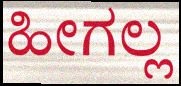
ಹೀಗಲ್ಲ